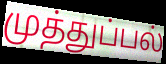
முத்துப்பல்